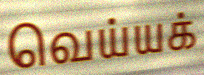
வெய்யக்